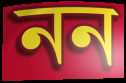
নন